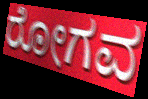
ರೋಗವ